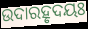
ଉଦାରହୃଦୟଃ